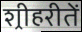
श्रीहरीतें